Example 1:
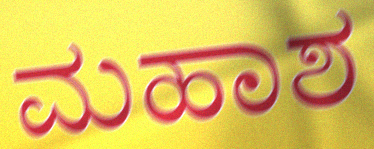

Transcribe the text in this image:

ಮಹಾಶ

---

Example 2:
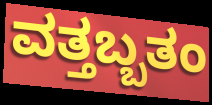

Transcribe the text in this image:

ವತ್ತಬ್ಬತಂ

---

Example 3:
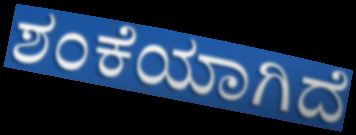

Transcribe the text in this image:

ಶಂಕೆಯಾಗಿದೆ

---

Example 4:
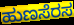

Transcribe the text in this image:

ಹುಣಸೆರಸ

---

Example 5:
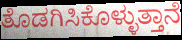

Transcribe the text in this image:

ತೊಡಗಿಸಿಕೊಳ್ಳುತ್ತಾನೆ